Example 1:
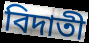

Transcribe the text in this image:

বিদাতী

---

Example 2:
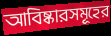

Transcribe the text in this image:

আবিষ্কারসমূহের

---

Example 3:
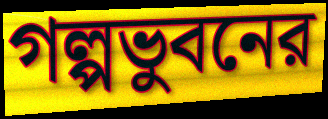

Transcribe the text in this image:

গল্পভুবনের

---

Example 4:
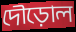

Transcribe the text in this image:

দৌড়োল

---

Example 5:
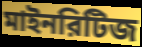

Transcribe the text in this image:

মাইনরিটিজ